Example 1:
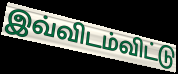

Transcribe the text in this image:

இவ்விடம்விட்டு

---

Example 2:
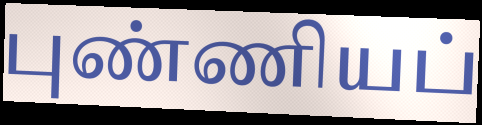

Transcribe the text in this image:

புண்ணியப்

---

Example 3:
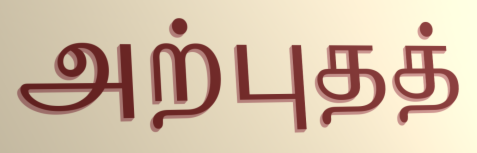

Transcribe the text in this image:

அற்புதத்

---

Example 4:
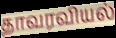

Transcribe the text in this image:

தாவரவியல்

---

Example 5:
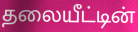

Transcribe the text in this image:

தலையீட்டின்